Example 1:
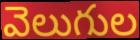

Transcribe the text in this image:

వెలుగుల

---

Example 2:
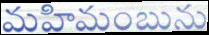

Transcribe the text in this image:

మహిమంబును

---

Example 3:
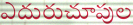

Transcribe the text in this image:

ఎదురుచూపుల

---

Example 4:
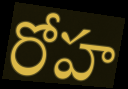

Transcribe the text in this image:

రోహ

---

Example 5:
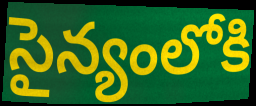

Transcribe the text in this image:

సైన్యంలోకి